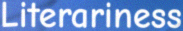
Literariness